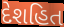
દેશહિત